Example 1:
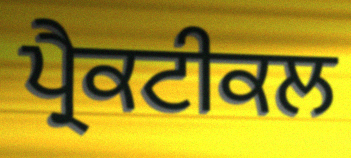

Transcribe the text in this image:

ਪ੍ਰੈਕਟੀਕਲ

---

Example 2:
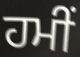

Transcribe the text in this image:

ਹਮੀਂ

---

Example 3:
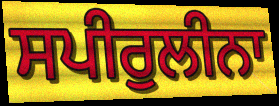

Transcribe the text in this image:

ਸਪੀਰੁਲੀਨਾ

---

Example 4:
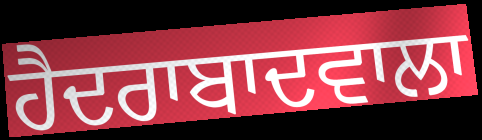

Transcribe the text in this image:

ਹੈਦਰਾਬਾਦਵਾਲਾ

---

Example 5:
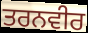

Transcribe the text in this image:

ਤਰਨਵੀਰ